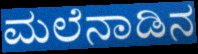
ಮಲೆನಾಡಿನ